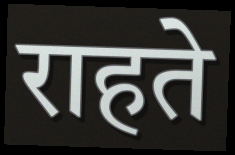
राहते